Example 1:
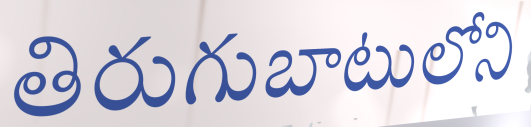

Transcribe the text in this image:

తిరుగుబాటులోని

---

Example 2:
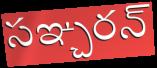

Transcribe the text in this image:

సఞ్చరన్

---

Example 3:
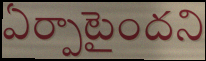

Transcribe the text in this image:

ఏర్పాటైందని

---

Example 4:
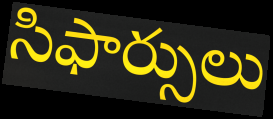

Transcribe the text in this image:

సిఫార్సులు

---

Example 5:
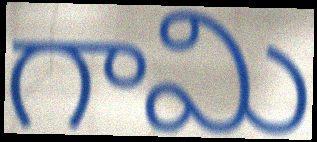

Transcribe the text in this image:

గామి